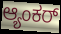
ಆ್ಯಂಕರ್